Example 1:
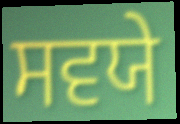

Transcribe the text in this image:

ਸਵਯੇ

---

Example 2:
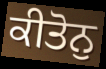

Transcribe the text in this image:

ਕੀਤੋਨੁ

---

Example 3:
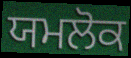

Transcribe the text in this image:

ਯਮਲੋਕ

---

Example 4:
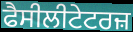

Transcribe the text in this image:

ਫੈਸੀਲੀਟੇਟਰਜ਼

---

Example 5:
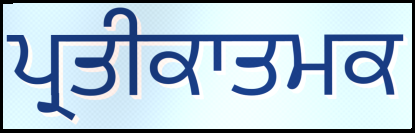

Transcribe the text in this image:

ਪ੍ਰਤੀਕਾਤਮਕ